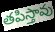
తపిస్తావు